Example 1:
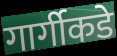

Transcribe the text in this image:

गार्गीकडे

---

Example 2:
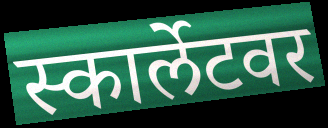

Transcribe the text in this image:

स्कार्लेटवर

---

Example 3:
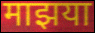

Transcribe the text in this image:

माझया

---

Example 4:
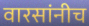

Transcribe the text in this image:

वारसांनीच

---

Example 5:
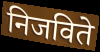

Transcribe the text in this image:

निजविते